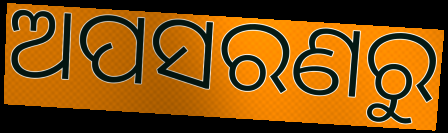
ଅପସରଣରୁ